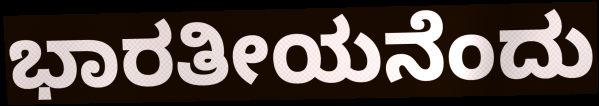
ಭಾರತೀಯನೆಂದು